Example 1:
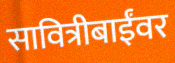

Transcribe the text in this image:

सावित्रीबाईंवर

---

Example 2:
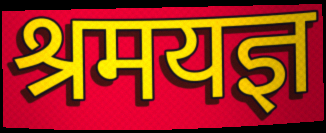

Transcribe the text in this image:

श्रमयज्ञ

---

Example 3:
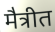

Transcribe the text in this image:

मैत्रीत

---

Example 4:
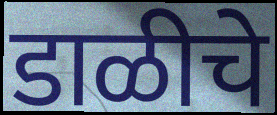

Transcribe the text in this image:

डाळीचे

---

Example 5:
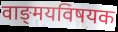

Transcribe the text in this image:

वाङ्मयविषयक